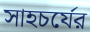
সাহচর্যের